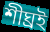
শীঘ্ৰই